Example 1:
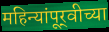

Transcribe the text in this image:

महिन्यांपूर्वीच्या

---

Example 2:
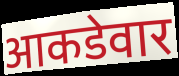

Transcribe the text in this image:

आकडेवार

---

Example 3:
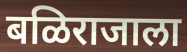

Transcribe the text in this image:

बळिराजाला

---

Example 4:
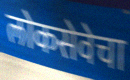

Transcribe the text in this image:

लोकसेवेचा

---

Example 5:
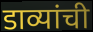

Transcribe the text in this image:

डाव्यांची